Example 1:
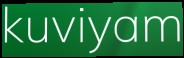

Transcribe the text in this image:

kuviyam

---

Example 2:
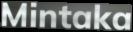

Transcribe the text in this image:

Mintaka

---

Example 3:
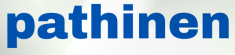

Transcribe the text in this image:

pathinen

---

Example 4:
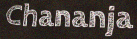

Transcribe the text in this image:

Chananja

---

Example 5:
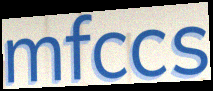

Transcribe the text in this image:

mfccs